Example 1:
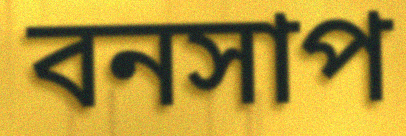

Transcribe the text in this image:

বনসাপ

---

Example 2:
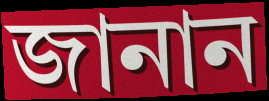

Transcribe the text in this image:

জানান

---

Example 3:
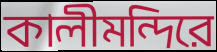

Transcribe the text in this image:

কালীমন্দিরে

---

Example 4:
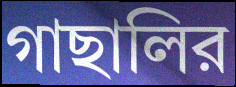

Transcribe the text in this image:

গাছালির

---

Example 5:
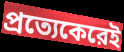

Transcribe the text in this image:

প্রত্যেকেরেই